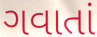
ગવાતાં